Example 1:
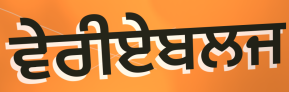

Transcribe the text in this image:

ਵੇਰੀਏਬਲਜ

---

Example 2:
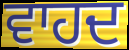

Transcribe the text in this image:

ਵਾਹਦ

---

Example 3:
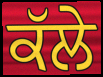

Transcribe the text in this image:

ਕੱਲੇ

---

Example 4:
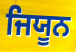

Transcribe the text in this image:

ਜਿਯੂਨ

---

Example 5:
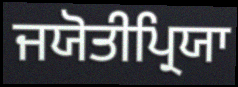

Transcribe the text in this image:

ਜਯੋਤੀਪ੍ਰਿਯਾ